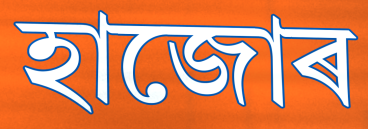
হাজোৰ